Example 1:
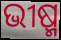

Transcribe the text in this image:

ଭୀଷ୍ମ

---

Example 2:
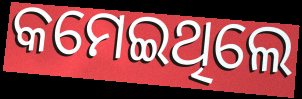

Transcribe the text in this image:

କମେଇଥିଲେ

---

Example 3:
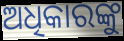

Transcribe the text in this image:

ଅଧିକାରଙ୍କୁ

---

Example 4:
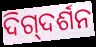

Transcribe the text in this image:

ଦିଗ୍‍ଦର୍ଶନ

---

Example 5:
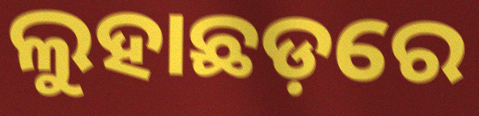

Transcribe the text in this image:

ଲୁହାଛଡ଼ରେ